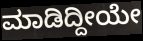
ಮಾಡಿದ್ದೀಯೇ